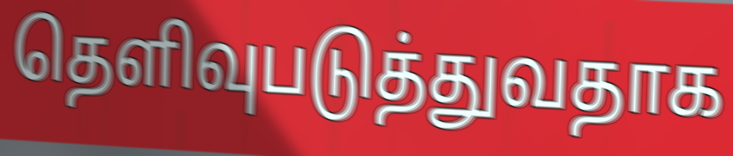
தெளிவுபடுத்துவதாக